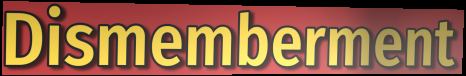
Dismemberment